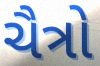
ચૈત્રો